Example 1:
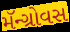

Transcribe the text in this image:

મૅન્ગ્રોવસ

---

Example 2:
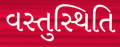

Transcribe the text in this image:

વસ્તુસ્થિતિ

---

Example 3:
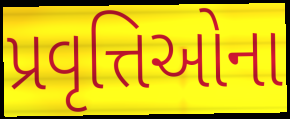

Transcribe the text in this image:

પ્રવૃત્તિઓના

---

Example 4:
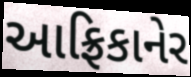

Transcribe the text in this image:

આફ્રિકાનેર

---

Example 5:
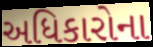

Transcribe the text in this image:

અધિકારોના